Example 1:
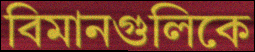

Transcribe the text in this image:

বিমানগুলিকে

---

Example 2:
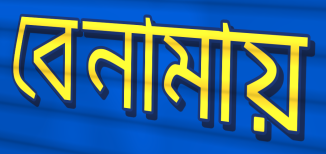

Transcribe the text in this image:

বেনামায়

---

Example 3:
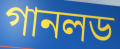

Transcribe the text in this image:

গানলড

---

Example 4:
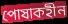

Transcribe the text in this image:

পোষাকহীন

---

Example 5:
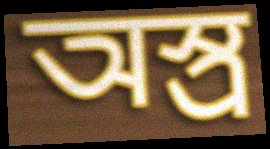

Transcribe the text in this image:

অস্ত্র